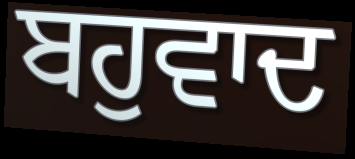
ਬਹੁਵਾਦ